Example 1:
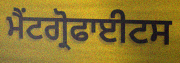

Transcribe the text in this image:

ਮੈਂਟਗ੍ਰੋਫਾਈਟਸ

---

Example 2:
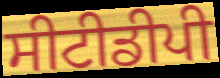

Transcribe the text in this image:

ਸੀਟੀਡੀਪੀ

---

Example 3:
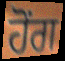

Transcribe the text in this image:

ਹੋੰਗ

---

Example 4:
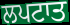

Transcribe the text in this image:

ਲਪਟਾਤ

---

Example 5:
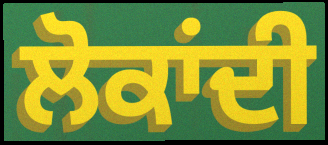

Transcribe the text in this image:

ਲੋਕਾਂਦੀ